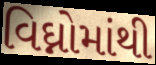
વિઘ્નોમાંથી